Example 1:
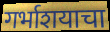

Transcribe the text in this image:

गर्भाशयाचा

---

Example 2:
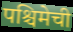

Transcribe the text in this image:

पश्चिमेची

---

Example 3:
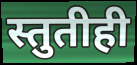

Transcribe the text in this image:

स्तुतीही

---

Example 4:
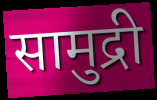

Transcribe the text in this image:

सामुद्री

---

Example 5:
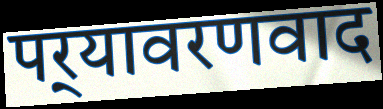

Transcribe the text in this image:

पर्यावरणवाद